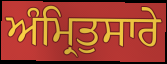
ਅੰਮ੍ਰਿਤੁਸਾਰੇ